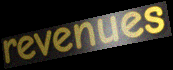
revenues